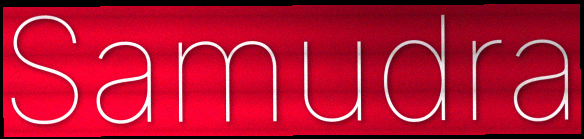
Samudra